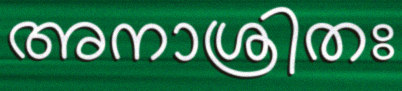
അനാശ്രിതഃ